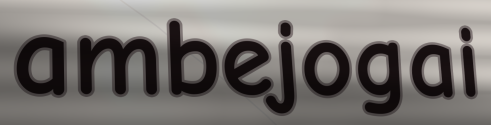
ambejogai